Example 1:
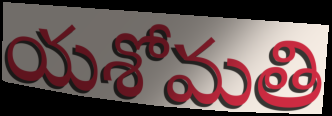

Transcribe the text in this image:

యశోమతి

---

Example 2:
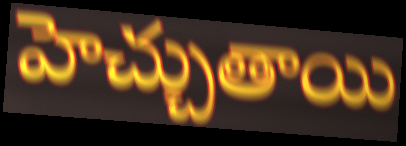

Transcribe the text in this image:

హెచ్చుతాయి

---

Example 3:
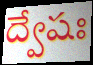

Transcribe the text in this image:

ద్వేషః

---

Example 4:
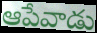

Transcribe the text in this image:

ఆపేవాడు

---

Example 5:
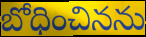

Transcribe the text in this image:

బోధించినను